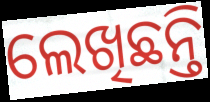
ଲେଖିଛନ୍ତି